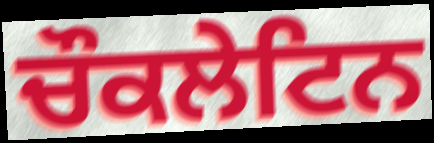
ਚੌਕਲੇਟਿਨ